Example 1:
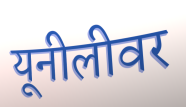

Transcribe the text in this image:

यूनीलीवर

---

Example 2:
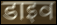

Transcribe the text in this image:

डाइव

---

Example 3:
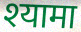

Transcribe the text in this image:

श्‍यामा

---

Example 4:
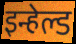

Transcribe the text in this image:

इन्हेल्ड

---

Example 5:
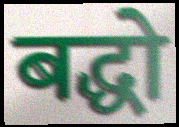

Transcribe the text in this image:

बद्धो